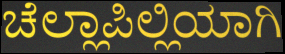
ಚೆಲ್ಲಾಪಿಲ್ಲಿಯಾಗಿ